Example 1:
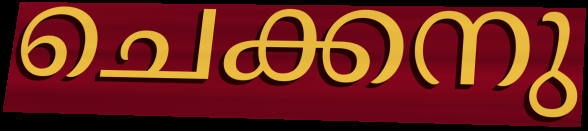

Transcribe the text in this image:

ചെക്കനു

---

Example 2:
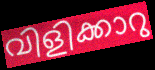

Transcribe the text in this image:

വിളിക്കാറു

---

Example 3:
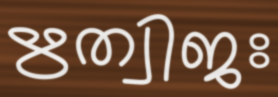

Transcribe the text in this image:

ഋത്വിജഃ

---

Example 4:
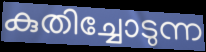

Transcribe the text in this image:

കുതിച്ചോടുന്ന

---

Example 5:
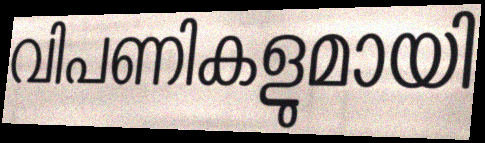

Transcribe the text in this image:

വിപണികളുമായി